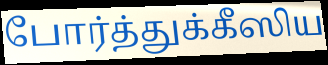
போர்த்துக்கீஸிய